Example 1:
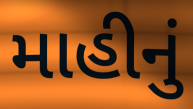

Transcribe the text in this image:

માહીનું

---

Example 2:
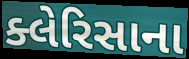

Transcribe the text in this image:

ક્લેરિસાના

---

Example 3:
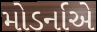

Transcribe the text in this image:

મોડર્નાએ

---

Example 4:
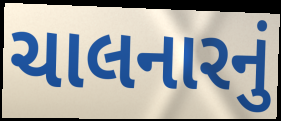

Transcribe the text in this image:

ચાલનારનું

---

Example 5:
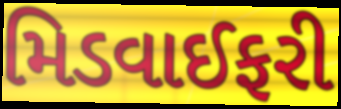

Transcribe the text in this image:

મિડવાઈફરી